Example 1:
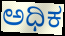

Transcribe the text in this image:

ಅಧಿಕ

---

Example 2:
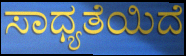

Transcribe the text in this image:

ಸಾಧ್ಯತೆಯಿದೆ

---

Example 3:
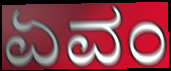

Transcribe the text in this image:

ಏವಂ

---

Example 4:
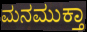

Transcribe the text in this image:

ಮನಮುಕ್ತಾ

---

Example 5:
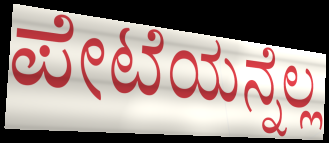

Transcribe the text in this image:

ಪೇಟೆಯನ್ನೆಲ್ಲ